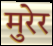
मुरेर